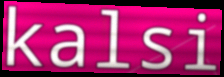
kalsi